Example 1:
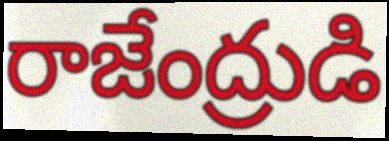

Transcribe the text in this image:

రాజేంద్రుడి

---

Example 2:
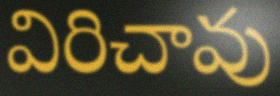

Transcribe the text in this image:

విరిచావు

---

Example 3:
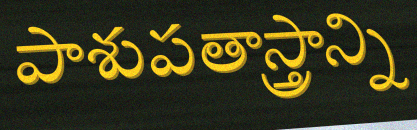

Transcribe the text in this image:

పాశుపతాస్త్రాన్ని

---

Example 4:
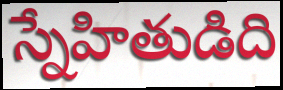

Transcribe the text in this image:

స్నేహితుడిది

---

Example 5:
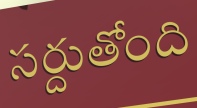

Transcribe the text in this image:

సర్దుతోంది